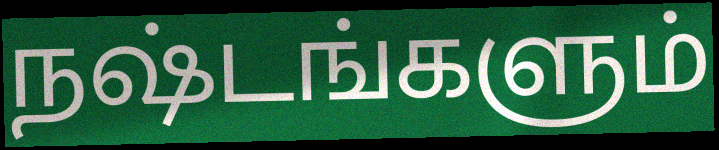
நஷ்டங்களும்